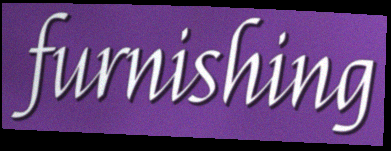
furnishing